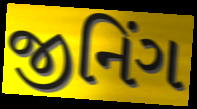
જીનિંગ